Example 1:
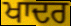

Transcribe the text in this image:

ਖਾਦਰ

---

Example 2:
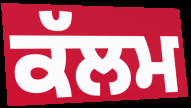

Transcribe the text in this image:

ਕੱਲਮ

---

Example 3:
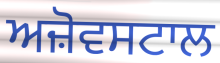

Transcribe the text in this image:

ਅਜ਼ੋਵਸਟਾਲ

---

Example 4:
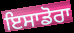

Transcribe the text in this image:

ਇਸਾਡੋਰਾ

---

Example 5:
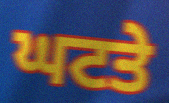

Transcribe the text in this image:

ਘਟਤੇ